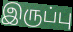
இருப்பு